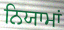
ਨਿਯਾਮਾਂ